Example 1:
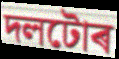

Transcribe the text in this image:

দলটোৰ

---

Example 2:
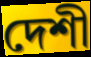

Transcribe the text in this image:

দেশী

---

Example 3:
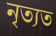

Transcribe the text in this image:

নৃত্যত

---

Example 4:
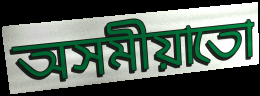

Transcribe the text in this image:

অসমীয়াতো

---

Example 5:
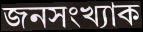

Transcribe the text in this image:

জনসংখ্যাক